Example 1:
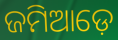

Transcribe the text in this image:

ଜମିଆଡ଼େ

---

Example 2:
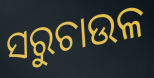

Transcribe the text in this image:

ସରୁଚାଉଳ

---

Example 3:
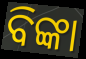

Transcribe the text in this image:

ବିଙ୍କା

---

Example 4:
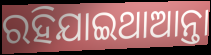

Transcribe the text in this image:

ରହିଯାଇଥାଆନ୍ତା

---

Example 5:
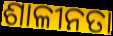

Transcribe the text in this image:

ଶାଳୀନତା